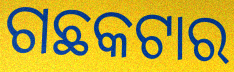
ଗଛକଟାର